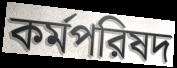
কর্মপরিষদ